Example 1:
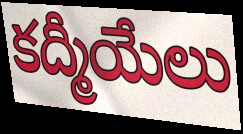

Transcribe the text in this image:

కద్మీయేలు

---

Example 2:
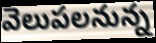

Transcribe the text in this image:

వెలుపలనున్న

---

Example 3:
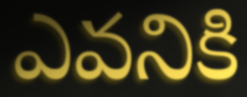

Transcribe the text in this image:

ఎవనికి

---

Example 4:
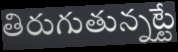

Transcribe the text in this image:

తిరుగుతున్నట్టే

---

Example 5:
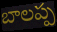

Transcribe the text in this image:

బాలప్ప